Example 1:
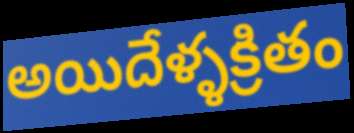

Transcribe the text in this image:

అయిదేళ్ళక్రితం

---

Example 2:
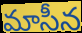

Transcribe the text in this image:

మాసీన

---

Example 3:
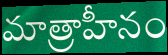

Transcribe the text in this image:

మాత్రాహీనం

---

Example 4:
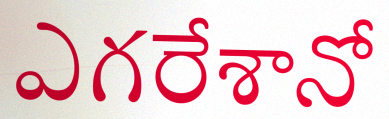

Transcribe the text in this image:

ఎగరేశానో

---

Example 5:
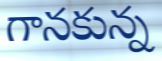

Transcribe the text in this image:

గానకున్న